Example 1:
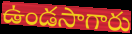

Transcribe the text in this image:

ఉండసాగారు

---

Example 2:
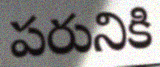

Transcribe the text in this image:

పరునికి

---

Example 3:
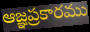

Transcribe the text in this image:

ఆజ్ఞప్రకారము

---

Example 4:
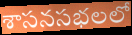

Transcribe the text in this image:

శాసనసభలలో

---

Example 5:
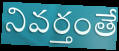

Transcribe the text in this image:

నివర్తంతే